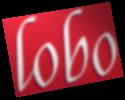
lobo